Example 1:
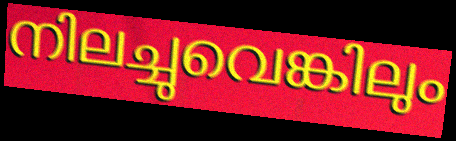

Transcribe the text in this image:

നിലച്ചുവെങ്കിലും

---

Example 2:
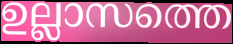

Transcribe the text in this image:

ഉല്ലാസത്തെ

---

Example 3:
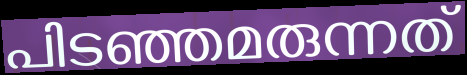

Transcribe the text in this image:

പിടഞ്ഞമരുന്നത്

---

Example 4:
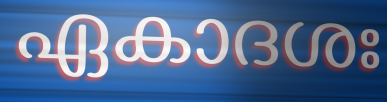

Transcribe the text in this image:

ഏകാദശഃ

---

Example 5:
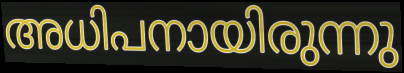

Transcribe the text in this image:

അധിപനായിരുന്നു